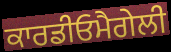
ਕਾਰਡੀਓਮੈਗੇਲੀ